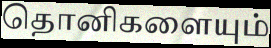
தொனிகளையும்